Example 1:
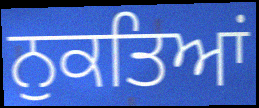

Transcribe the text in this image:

ਨੁਕਤਿਆਂ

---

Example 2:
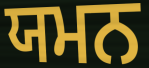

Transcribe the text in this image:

ਯਮਨ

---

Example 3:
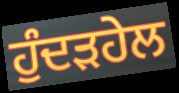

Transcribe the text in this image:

ਹੁੰਦੜਹੇਲ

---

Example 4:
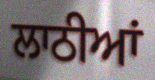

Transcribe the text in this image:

ਲਾਠੀਆਂ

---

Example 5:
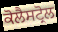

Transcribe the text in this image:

ਕੋਲੈਸਟ੍ਰੋਲ